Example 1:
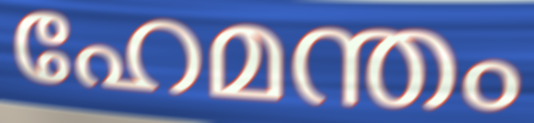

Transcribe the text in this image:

ഹേമന്തം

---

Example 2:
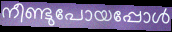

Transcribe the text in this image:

നീണ്ടുപോയപ്പോൾ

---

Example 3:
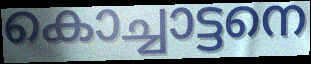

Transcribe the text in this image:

കൊച്ചാട്ടനെ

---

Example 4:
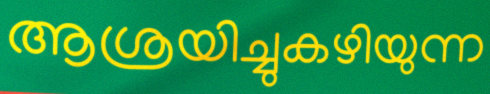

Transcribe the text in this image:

ആശ്രയിച്ചുകഴിയുന്ന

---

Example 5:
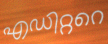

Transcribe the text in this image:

എഡിറ്ററെ